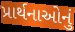
પ્રાર્થનાઓનું